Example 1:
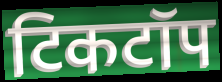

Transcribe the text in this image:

टिकटॉप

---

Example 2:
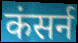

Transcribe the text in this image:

कंसर्न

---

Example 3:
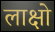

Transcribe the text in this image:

लाक्षो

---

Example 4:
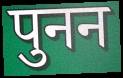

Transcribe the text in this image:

पुनन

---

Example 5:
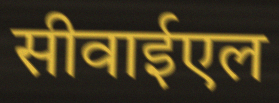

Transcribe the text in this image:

सीवाईएल